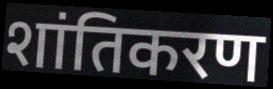
शांतिकरण